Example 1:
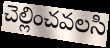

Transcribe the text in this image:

చెల్లించవలసి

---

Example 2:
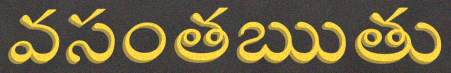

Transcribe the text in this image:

వసంతఋతు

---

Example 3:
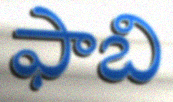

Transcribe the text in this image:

ఫాబి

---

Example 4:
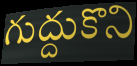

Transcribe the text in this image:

గుద్దుకొని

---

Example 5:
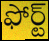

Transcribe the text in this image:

ఫోర్ట్